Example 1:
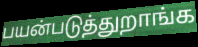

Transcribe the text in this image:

பயன்படுத்துறாங்க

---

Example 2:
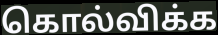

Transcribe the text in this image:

கொல்விக்க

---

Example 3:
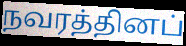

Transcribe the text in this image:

நவரத்தினப்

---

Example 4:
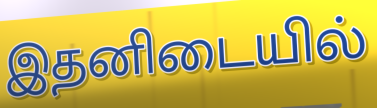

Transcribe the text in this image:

இதனிடையில்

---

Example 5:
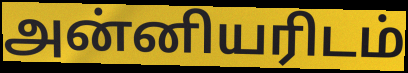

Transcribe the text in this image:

அன்னியரிடம்